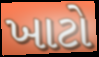
ખાટો